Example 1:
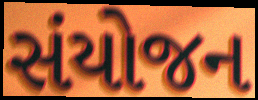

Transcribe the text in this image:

સંયોજન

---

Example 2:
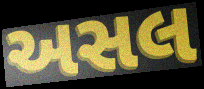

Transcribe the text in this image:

અસલ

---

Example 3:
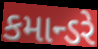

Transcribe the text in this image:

કમાન્ડરે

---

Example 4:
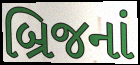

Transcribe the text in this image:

બ્રિજનાં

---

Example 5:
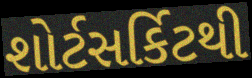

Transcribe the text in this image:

શોર્ટસર્કિટથી